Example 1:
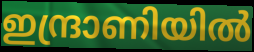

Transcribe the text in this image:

ഇന്ദ്രാണിയിൽ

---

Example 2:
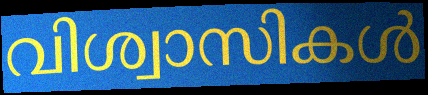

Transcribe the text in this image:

വിശ്വാസികൾ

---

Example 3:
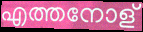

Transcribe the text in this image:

എത്തനോള്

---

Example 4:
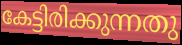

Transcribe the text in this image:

കേട്ടിരിക്കുന്നതു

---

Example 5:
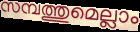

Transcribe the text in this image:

സമ്പത്തുമെല്ലാം